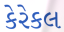
કેરેકલ